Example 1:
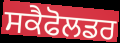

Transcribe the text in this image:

ਸਕੈਫੋਲਡਰ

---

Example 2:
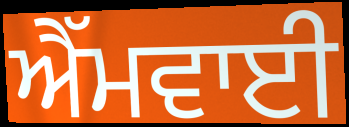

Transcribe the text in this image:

ਐੱਮਵਾਈ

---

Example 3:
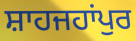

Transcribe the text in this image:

ਸ਼ਾਹਜਹਾਂਪੁਰ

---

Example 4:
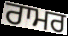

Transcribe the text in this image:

ਰਾਮਰ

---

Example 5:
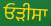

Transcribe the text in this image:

ਓੜੀਸਾ